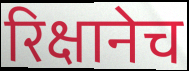
रिक्षानेच